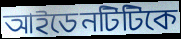
আইডেনটিটিকে